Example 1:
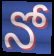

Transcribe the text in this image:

నో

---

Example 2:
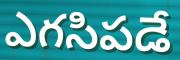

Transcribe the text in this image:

ఎగసిపడే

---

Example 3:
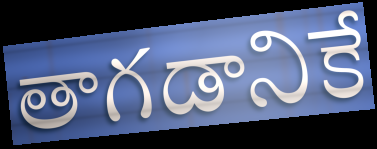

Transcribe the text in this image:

తాగడానికే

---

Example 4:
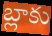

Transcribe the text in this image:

బ్లాకు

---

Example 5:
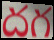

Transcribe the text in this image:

దగ